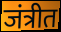
जंत्रीत